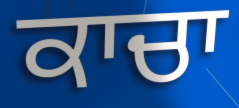
ਕਾਚਾ